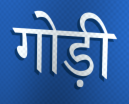
गोड़ी